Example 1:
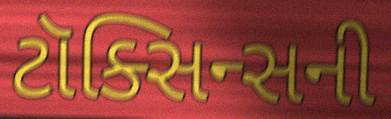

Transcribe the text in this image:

ટૉક્સિન્સની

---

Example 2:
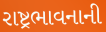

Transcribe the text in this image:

રાષ્ટ્રભાવનાની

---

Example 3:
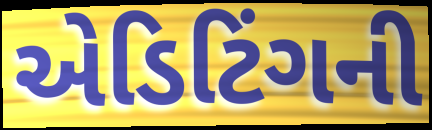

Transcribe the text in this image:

એડિટિંગની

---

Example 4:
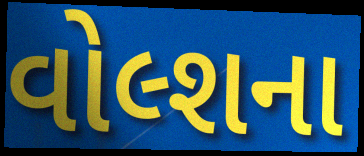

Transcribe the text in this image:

વોલ્શના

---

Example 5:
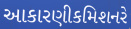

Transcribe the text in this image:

આકારણીકમિશનરે